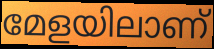
മേളയിലാണ്